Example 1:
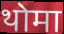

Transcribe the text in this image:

थोमा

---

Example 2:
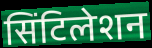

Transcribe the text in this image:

सिंटिलेशन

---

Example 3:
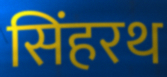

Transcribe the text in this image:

सिंहरथ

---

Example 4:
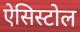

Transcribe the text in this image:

ऐसिस्टोल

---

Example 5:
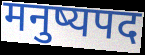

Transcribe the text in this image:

मनुष्यपद